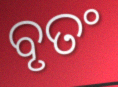
ବୃତଂ